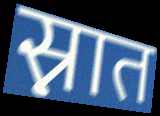
स्नात